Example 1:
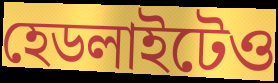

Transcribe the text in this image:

হেডলাইটেও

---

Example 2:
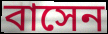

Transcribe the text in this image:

বাসেন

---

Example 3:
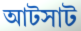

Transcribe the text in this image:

আটসাট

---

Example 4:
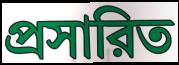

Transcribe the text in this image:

প্রসারিত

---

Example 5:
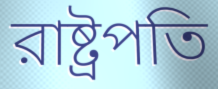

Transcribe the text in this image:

রাষ্ট্রপতি